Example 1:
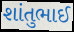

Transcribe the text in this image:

શાંતુભાઈ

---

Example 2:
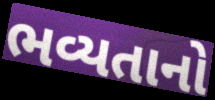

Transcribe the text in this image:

ભવ્યતાનો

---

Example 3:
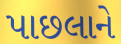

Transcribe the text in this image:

પાછલાને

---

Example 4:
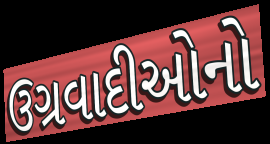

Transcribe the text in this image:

ઉગ્રવાદીઓનો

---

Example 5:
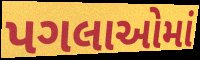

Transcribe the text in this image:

પગલાઓમાં